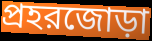
প্রহরজোড়া